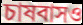
চাষবাসও